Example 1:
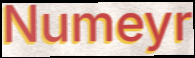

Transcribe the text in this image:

Numeyr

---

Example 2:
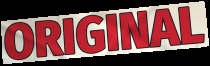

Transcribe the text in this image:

ORIGINAL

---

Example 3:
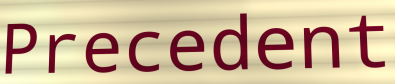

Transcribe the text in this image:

Precedent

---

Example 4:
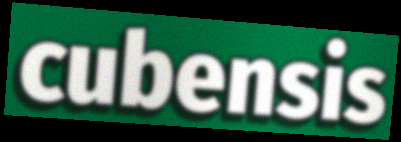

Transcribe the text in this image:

cubensis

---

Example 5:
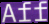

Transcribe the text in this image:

Aff